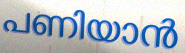
പണിയാൻ